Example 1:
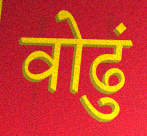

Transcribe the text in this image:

वोढुं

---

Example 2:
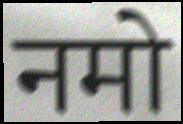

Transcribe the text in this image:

नमो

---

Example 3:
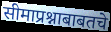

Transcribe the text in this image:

सीमाप्रश्नाबाबतचे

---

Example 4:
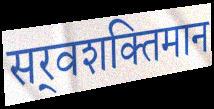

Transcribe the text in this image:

सर्वशक्‍तिमान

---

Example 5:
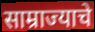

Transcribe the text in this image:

साम्राज्याचे